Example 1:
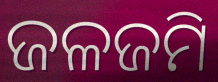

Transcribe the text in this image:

ଜଳଜମି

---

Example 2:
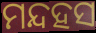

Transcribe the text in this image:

ମନ୍ଦହସ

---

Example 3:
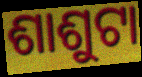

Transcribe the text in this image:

ଶାଶୁଟା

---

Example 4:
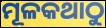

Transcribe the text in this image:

ମୂଳକଥାଠୁ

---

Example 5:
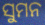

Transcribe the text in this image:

ସୁମନ